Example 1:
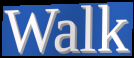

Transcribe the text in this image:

Walk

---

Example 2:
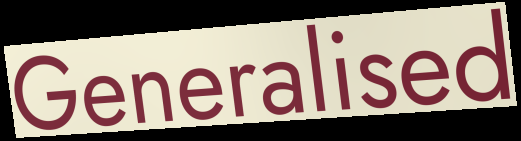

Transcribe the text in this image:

Generalised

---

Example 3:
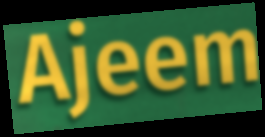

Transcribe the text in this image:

Ajeem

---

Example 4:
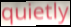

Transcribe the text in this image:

quietly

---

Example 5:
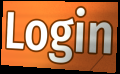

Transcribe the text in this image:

Login